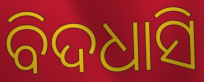
ବିଦଧାସି